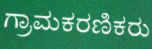
ಗ್ರಾಮಕರಣಿಕರು